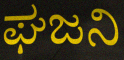
ಘಜನಿ